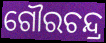
ଗୌରଚନ୍ଦ୍ର